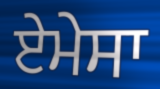
ਏਮੇਸਾ